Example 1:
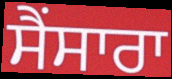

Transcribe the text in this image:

ਸੈਂਸਾਰਾ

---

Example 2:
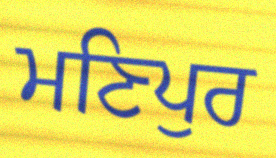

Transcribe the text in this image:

ਮਣਿਪੁਰ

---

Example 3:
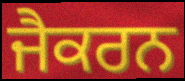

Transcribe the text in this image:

ਜੈਕਰਨ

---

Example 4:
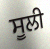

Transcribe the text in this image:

ਸੂਲੀ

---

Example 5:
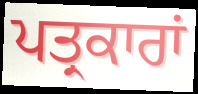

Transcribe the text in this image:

ਪਤ੍ਰਕਾਰਾਂ